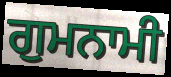
ਗੁਮਨਾਮੀ